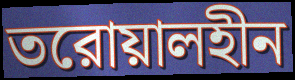
তরোয়ালহীন